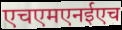
एचएमएनईएच